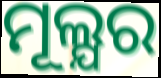
ମୂଲ୍ଯର